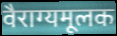
वैराग्यमूलक